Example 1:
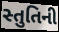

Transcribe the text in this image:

સ્તુતિની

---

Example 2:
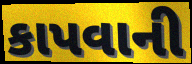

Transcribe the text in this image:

કાપવાની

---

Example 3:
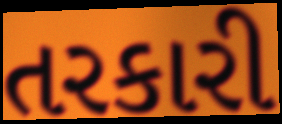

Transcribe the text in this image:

તરકારી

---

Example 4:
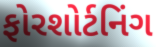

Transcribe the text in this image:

ફોરશોર્ટનિંગ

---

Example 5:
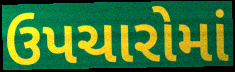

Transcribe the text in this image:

ઉપચારોમાં